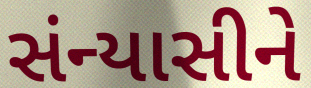
સંન્યાસીને